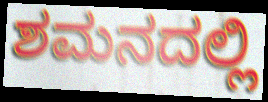
ಶಮನದಲ್ಲಿ